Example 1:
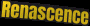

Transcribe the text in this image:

Renascence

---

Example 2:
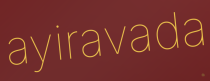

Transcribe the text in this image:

ayiravada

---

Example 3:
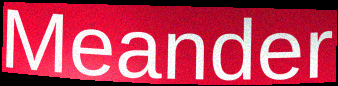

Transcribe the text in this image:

Meander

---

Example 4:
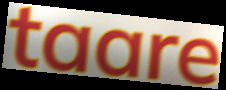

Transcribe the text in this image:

taare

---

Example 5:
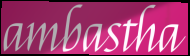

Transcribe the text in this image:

ambastha